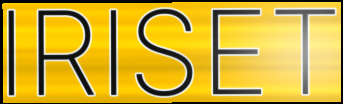
IRISET